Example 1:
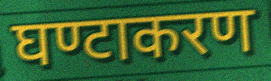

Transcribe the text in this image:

घण्टाकरण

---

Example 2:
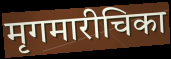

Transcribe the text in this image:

मृगमारीचिका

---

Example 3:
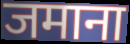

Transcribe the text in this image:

जमाना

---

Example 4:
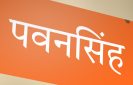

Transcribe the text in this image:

पवनसिंह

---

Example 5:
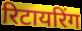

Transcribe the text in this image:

रिटायरिंग